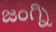
జంగ్ని